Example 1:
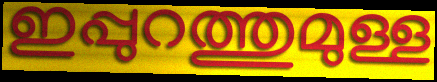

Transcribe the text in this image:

ഇപ്പുറത്തുമുള്ള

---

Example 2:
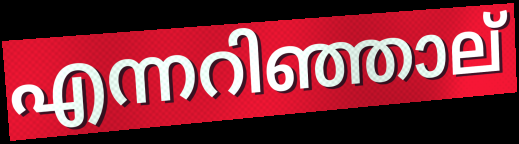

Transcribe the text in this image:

എന്നറിഞ്ഞാല്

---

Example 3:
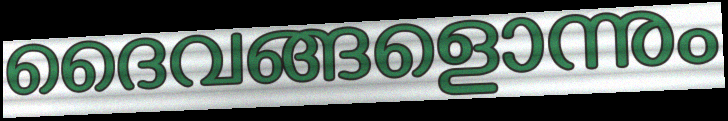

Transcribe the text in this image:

ദൈവങ്ങളൊന്നും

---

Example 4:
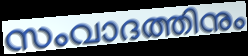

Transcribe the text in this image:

സംവാദത്തിനും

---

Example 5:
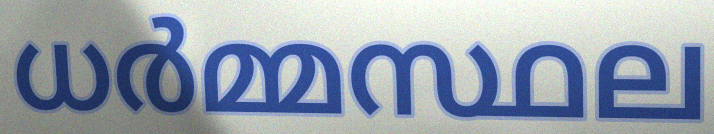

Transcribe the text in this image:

ധർമ്മസ്ഥല